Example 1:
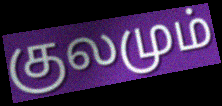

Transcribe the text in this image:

குலமும்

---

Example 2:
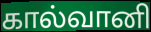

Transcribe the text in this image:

கால்வானி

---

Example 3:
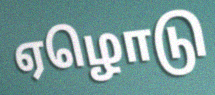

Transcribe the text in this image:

ஏழொடு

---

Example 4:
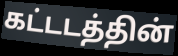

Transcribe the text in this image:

கட்டடத்தின்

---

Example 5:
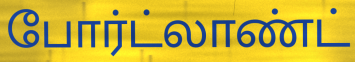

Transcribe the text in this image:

போர்ட்லாண்ட்